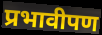
प्रभावीपण